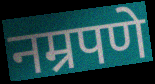
नम्रपणे